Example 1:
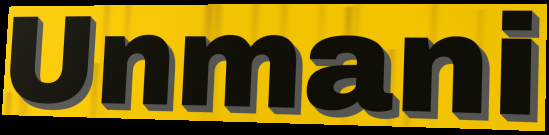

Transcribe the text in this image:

Unmani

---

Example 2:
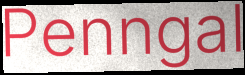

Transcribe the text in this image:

Penngal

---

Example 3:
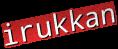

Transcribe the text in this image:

irukkan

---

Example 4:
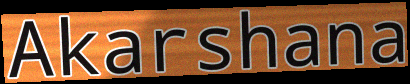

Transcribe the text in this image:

Akarshana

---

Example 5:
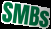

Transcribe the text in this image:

SMBs